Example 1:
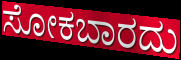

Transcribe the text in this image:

ಸೋಕಬಾರದು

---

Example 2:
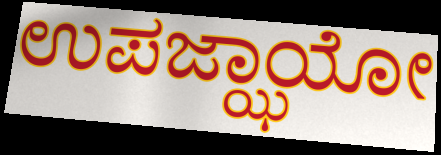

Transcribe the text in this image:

ಉಪಜ್ಝಾಯೋ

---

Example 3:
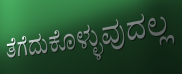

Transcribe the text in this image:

ತೆಗೆದುಕೊಳ್ಳುವುದಲ್ಲ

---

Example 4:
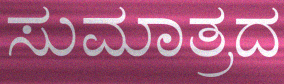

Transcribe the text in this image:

ಸುಮಾತ್ರದ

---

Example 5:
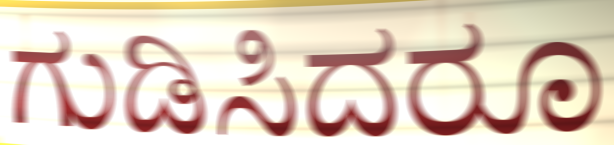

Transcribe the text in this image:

ಗುಡಿಸಿದರೂ